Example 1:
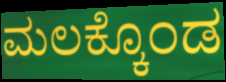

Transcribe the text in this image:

ಮಲಕ್ಕೊಂಡ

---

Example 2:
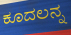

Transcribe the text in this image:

ಕೂದಲನ್ನ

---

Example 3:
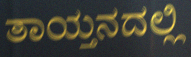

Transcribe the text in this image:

ತಾಯ್ತನದಲ್ಲಿ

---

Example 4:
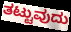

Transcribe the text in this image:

ತಟ್ಟುವುದು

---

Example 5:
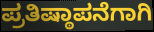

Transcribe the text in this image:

ಪ್ರತಿಷ್ಠಾಪನೆಗಾಗಿ